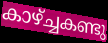
കാഴ്ച്ചകണ്ടു